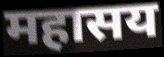
महासय